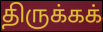
திருக்கக்